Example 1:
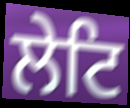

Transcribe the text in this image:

ਲੇਟਿ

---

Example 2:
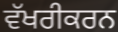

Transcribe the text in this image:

ਵੱਖਰੀਕਰਨ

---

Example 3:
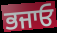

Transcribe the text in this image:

ਭਜਾਓ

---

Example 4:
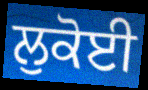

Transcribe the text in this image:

ਲੁਕੋਈ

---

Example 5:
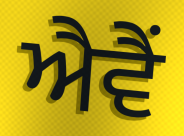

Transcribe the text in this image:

ਐਵੈਂ